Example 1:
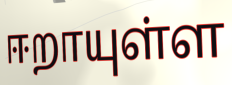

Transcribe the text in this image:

ஈறாயுள்ள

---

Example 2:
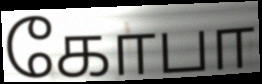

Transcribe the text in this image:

கோபா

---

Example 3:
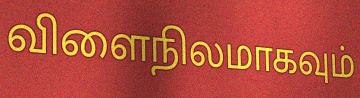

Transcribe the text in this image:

விளைநிலமாகவும்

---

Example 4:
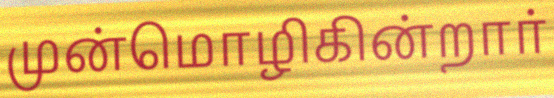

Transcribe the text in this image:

முன்மொழிகின்றார்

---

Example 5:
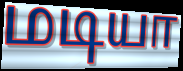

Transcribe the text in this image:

மடியா